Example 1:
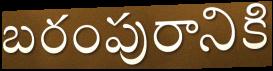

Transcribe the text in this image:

బరంపురానికి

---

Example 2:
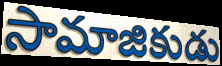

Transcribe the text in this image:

సామాజికుడు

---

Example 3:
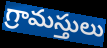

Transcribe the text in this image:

గ్రామస్తులు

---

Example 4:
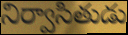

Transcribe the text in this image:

నిర్వాసితుడు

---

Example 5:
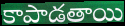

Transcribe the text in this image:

కాపాడతాయి